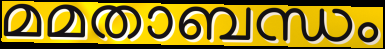
മമതാബന്ധം